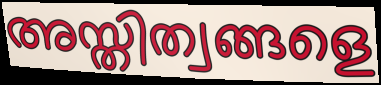
അസ്തിത്വങ്ങളെ